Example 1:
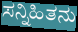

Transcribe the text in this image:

ಸನ್ನಿಹಿತನು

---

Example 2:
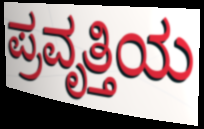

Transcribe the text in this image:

ಪ್ರವೃತ್ತಿಯ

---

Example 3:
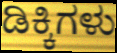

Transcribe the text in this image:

ಡಿಕ್ಕಿಗಳು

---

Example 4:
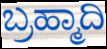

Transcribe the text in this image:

ಬ್ರಹ್ಮಾದಿ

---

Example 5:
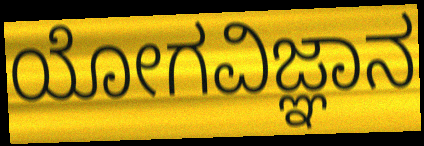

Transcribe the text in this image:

ಯೋಗವಿಜ್ಞಾನ